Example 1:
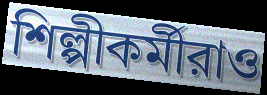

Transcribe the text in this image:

শিল্পীকর্মীরাও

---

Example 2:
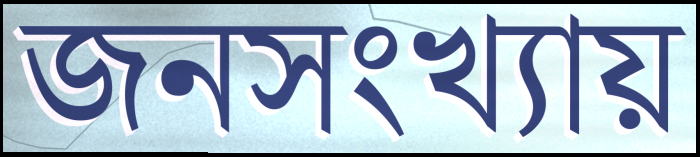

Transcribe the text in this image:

জনসংখ্যায়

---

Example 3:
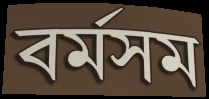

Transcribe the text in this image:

বর্মসম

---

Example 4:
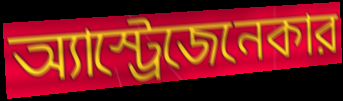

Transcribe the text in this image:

অ্যাস্ট্রেজেনেকার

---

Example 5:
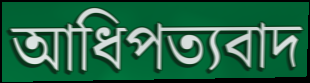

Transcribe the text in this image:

আধিপত্যবাদ